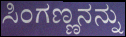
ಸಿಂಗಣ್ಣನನ್ನು